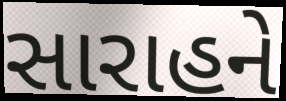
સારાહને